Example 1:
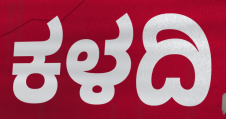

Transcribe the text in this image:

ಕಳದಿ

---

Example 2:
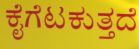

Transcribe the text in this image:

ಕೈಗೆಟಕುತ್ತದೆ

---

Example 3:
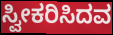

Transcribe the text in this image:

ಸ್ವೀಕರಿಸಿದವ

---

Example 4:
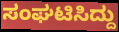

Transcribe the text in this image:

ಸಂಘಟಿಸಿದ್ದು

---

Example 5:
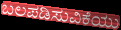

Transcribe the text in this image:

ಬಲಪಡಿಸುವಿಕೆಯು